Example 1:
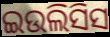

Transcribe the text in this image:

ଇଉଲିସିସ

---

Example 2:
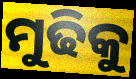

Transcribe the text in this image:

ମୁଢିକୁ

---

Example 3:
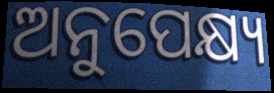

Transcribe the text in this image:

ଅନୁପେକ୍ଷ୍ୟ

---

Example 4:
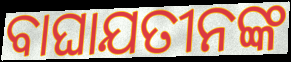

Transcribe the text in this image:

ବାଘାଯତୀନଙ୍କ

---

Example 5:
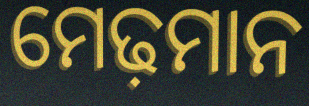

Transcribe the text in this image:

ମେଢ଼ମାନ